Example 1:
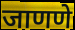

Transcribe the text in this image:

जाणणे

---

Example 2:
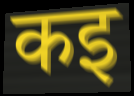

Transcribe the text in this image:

कइ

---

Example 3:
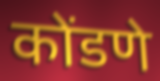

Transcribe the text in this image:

कोंडणे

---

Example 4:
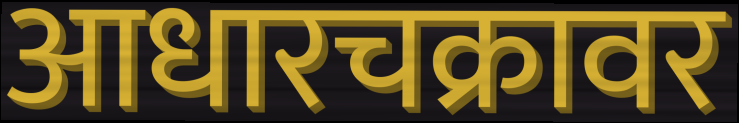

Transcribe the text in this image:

आधारचक्रावर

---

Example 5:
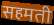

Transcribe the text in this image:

सहमती